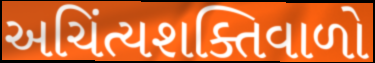
અચિંત્યશક્તિવાળો